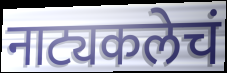
नाट्यकलेचं